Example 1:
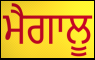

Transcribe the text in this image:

ਮੈਗਾਲੂ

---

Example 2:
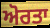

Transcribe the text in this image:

ਅੋਰਤਾ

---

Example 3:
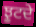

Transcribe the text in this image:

ਝੂਟਦੇ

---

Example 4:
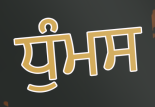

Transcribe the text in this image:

ਧੁੰਮਸ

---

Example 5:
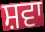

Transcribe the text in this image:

ਸ਼ਵਾ